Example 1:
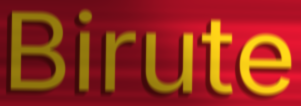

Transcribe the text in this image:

Birute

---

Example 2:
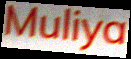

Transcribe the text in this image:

Muliya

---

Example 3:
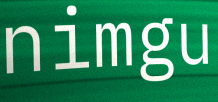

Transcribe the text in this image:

nimgu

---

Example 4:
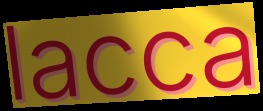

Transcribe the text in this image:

lacca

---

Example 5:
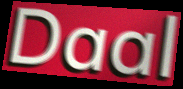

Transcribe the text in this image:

Daal